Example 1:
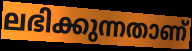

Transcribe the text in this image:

ലഭിക്കുന്നതാണ്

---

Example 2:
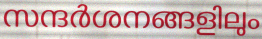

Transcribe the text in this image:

സന്ദർശനങ്ങളിലും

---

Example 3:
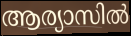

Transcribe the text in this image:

ആര്യാസിൽ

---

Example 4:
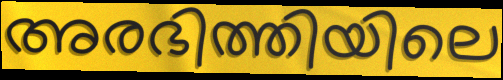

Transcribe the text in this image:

അരഭിത്തിയിലെ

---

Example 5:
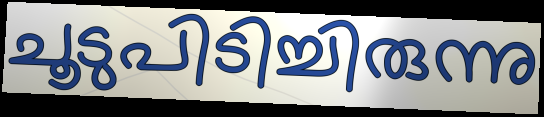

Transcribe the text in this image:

ചൂടുപിടിച്ചിരുന്നു